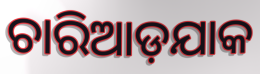
ଚାରିଆଡ଼ଯାକ